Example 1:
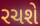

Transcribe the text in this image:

રચશે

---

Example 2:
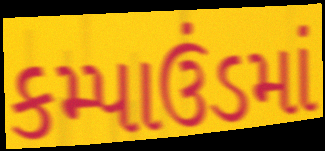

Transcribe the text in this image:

કમ્પાઉંડમાં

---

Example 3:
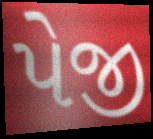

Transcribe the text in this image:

પેજી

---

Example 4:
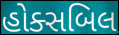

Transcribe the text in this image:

હોક્સબિલ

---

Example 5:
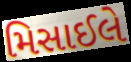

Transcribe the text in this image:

મિસાઈલે